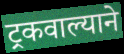
ट्रकवाल्याने